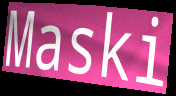
Maski